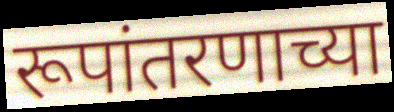
रूपांतरणाच्या